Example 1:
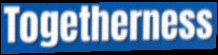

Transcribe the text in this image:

Togetherness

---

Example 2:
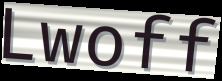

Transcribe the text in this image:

Lwoff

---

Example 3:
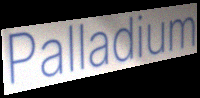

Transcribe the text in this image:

Palladium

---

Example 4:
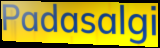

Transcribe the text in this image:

Padasalgi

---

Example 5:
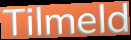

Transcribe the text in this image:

Tilmeld